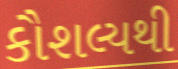
કૌશલ્યથી